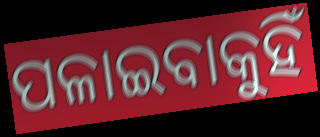
ପଳାଇବାକୁହିଁ